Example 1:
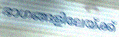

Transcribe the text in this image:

ഭാഗങ്ങളിലേയ്ക്ക്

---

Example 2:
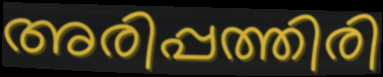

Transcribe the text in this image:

അരിപ്പത്തിരി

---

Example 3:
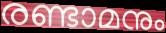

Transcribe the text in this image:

രണ്ടാമനും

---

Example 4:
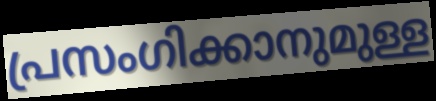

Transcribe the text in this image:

പ്രസംഗിക്കാനുമുള്ള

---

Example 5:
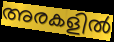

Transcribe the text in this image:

അരകളിൽ